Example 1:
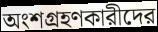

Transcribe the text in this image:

অংশগ্রহণকারীদের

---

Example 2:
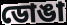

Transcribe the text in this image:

ডোঙা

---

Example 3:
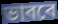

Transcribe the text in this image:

ভাববে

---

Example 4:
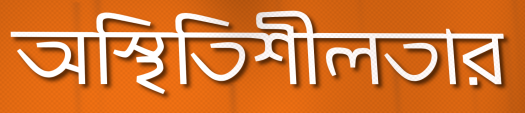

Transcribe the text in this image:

অস্থিতিশীলতার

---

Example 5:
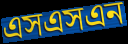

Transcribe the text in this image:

এসএসএন